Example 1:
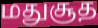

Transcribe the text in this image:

மதுசூத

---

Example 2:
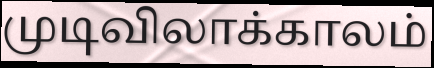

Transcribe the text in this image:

முடிவிலாக்காலம்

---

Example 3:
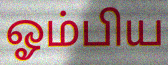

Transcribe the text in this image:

ஓம்பிய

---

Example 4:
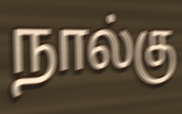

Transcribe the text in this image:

நால்கு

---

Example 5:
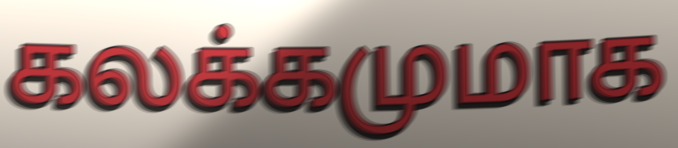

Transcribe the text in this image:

கலக்கமுமாக